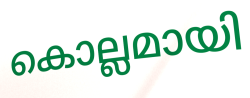
കൊല്ലമായി